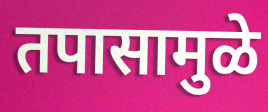
तपासामुळे